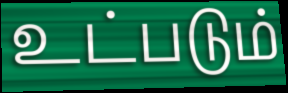
உட்படும்